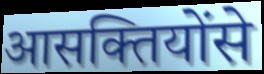
आसक्तियोंसे